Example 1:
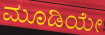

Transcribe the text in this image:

ಮೂಡಿಯೇ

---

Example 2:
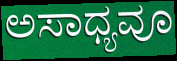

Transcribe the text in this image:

ಅಸಾಧ್ಯವೂ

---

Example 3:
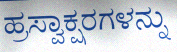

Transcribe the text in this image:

ಹ್ರಸ್ವಾಕ್ಷರಗಳನ್ನು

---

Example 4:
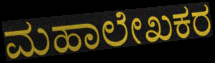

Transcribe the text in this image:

ಮಹಾಲೇಖಕರ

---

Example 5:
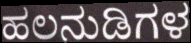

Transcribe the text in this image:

ಹಲನುಡಿಗಳ